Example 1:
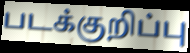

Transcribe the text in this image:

படக்குறிப்பு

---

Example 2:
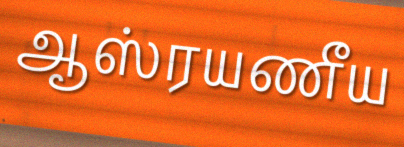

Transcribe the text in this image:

ஆஸ்ரயணீய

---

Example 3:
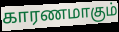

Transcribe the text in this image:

காரணமாகும்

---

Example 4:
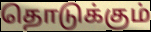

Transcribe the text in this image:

தொடுக்கும்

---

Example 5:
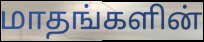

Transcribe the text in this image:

மாதங்களின்